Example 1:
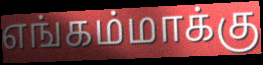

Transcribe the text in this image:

எங்கம்மாக்கு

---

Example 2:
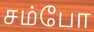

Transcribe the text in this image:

சம்போ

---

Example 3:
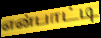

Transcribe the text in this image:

என்பாட்டி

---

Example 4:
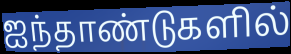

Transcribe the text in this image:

ஐந்தாண்டுகளில்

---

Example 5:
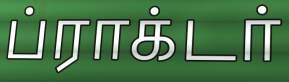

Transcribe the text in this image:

ப்ராக்டர்